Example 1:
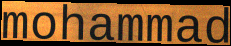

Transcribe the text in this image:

mohammad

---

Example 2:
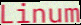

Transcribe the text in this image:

Linum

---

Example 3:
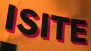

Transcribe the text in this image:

ISITE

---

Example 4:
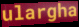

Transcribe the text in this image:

ulargha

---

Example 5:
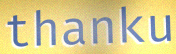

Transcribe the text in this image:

thanku